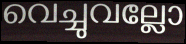
വെച്ചുവല്ലോ